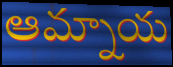
ఆమ్నాయ